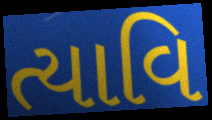
ત્યાવિ